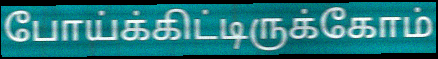
போய்க்கிட்டிருக்கோம்